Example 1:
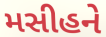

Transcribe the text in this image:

મસીહને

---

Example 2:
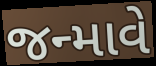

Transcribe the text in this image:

જન્માવે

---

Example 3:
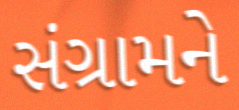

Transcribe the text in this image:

સંગ્રામને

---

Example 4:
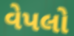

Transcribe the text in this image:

વેપલો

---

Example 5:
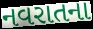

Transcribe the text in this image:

નવરાતના